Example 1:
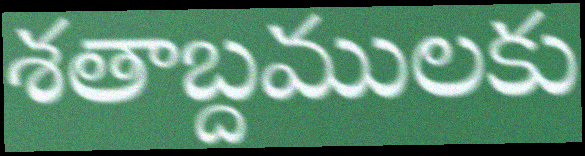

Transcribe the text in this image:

శతాబ్దములకు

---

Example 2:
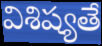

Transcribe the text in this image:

విశిష్యతే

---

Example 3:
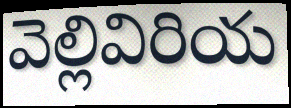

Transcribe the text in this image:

వెల్లివిరియ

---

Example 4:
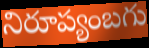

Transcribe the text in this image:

నిరూప్యంబగు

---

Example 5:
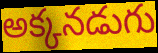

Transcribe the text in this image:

అక్కనడుగు